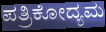
ಪತ್ರಿಕೋದ್ಯಮ